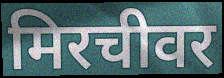
मिरचीवर